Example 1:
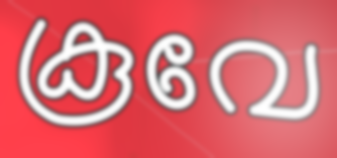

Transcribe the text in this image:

കൂവേ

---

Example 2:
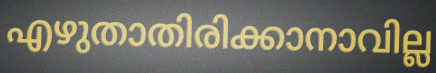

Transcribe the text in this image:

എഴുതാതിരിക്കാനാവില്ല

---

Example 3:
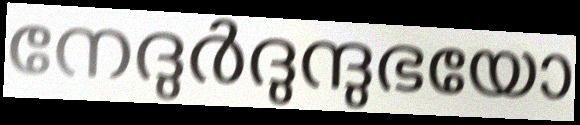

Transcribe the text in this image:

നേദുർദുന്ദുഭയോ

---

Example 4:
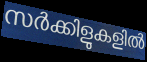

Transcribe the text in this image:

സർക്കിളുകളിൽ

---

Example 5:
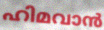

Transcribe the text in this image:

ഹിമവാൻ